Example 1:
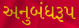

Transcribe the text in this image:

અનુબંધરૂપ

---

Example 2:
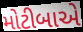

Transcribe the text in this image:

મોટીબાએ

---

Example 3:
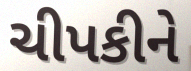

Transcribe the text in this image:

ચીપકીને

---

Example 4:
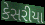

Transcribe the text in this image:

કેસરીયા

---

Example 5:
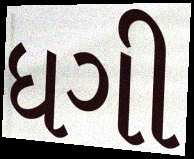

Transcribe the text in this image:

ધગી